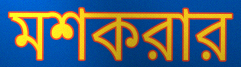
মশকরার